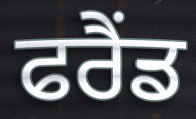
ਫਰੈਂਡ